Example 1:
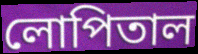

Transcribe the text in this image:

লোপিতাল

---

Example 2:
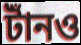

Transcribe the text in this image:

টাঁনও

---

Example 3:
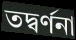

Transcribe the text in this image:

তদ্বর্ণনা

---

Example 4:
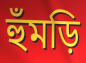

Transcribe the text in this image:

হুঁমড়ি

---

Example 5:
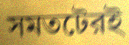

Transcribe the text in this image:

সমতটেরই